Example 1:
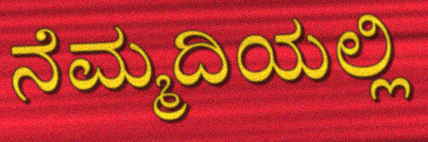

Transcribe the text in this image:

ನೆಮ್ಮದಿಯಲ್ಲಿ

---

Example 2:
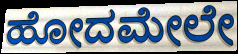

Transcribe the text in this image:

ಹೋದಮೇಲೇ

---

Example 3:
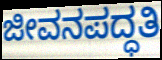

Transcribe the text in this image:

ಜೀವನಪದ್ಧತಿ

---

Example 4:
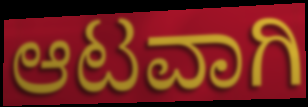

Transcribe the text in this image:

ಆಟವಾಗಿ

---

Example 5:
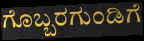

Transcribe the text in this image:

ಗೊಬ್ಬರಗುಂಡಿಗೆ